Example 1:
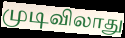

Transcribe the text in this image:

முடிவிலாது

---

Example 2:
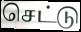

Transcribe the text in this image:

செட்டு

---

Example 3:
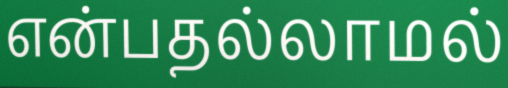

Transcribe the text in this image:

என்பதல்லாமல்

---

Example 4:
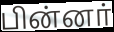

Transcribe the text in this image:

பின்னர்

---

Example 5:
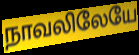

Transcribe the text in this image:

நாவலிலேயே